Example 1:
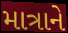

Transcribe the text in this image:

માત્રાને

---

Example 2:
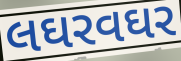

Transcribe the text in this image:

લઘરવઘર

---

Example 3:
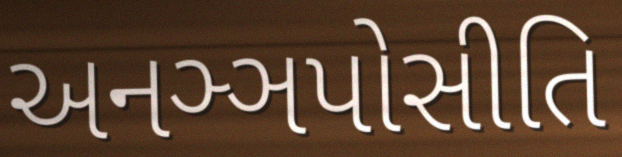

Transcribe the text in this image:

અનઞ્ઞપોસીતિ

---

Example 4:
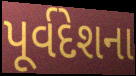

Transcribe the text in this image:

પૂર્વદેશના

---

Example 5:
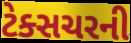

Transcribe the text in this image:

ટેક્સચરની